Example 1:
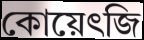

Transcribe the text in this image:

কোয়েৎজি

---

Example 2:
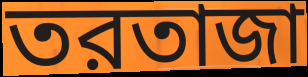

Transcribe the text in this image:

তরতাজা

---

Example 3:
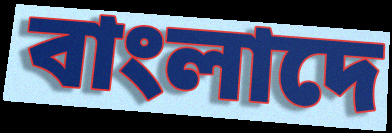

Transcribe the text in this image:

বাংলাদে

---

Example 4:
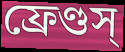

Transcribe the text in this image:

ফ্রেণ্ডস্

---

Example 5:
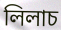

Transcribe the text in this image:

লিলাচ